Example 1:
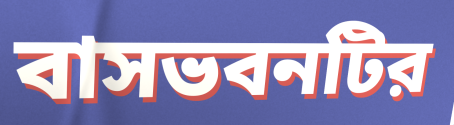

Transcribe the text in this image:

বাসভবনটির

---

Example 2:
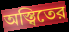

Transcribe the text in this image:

অস্ত্বিতের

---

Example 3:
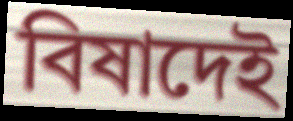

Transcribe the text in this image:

বিষাদেই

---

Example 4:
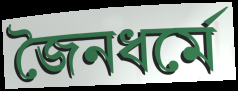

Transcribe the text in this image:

জৈনধর্মে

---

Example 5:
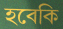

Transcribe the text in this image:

হবেকি